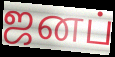
ஜனப்